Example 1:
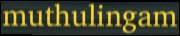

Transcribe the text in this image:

muthulingam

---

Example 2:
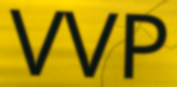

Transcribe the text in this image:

VVP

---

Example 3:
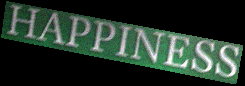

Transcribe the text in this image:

HAPPINESS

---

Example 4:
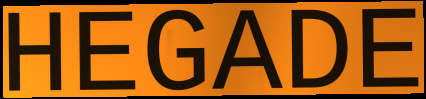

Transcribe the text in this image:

HEGADE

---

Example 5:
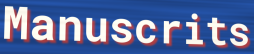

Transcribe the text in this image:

Manuscrits